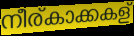
നീര്കാക്കകള്